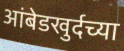
आंबेडखुर्दच्या